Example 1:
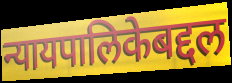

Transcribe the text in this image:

न्यायपालिकेबद्दल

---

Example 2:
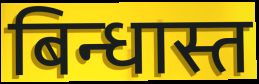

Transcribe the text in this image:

बिन्धास्त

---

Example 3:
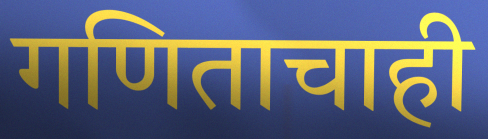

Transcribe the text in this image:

गणिताचाही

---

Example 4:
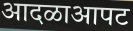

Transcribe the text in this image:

आदळाआपट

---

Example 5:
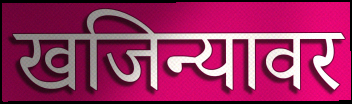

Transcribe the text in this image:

खजिन्यावर